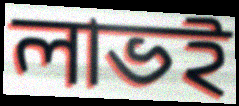
লাভই